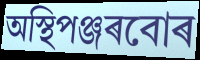
অস্থিপঞ্জৰবোৰ